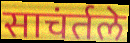
साचंर्तले